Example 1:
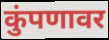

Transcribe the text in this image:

कुंपणावर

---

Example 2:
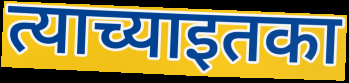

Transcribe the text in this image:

त्याच्याइतका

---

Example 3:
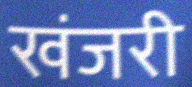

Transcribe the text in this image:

खंजरी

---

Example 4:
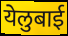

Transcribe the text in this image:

येलुबाई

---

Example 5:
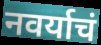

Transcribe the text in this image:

नवर्याचं